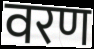
वरण